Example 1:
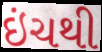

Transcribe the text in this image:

ઇંચથી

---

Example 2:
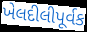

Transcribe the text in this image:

ખેલદીલીપૂર્વક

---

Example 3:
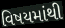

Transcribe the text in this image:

વિષયમાંથી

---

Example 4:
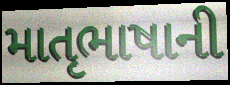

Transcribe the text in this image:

માતૃભાષાની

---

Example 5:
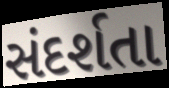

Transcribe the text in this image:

સંદર્શતા